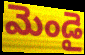
మెండై